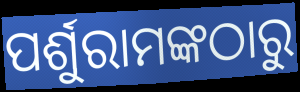
ପର୍ଶୁରାମଙ୍କଠାରୁ